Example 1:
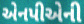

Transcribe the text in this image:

એનપીએની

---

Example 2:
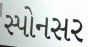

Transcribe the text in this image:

સ્પોનસર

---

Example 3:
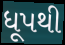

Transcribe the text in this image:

ધૂપથી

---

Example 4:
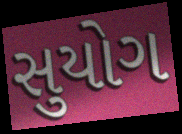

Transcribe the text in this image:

સુયોગ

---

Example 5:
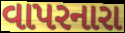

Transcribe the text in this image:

વાપરનારા